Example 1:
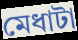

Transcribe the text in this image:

মেধাটা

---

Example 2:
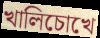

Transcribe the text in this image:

খালিচোখে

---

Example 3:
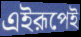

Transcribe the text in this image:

এইরূপেই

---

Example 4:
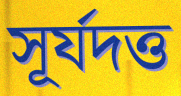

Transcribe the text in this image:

সূর্যদত্ত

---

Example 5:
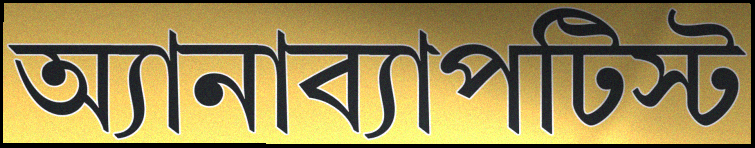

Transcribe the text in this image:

অ্যানাব্যাপটিস্ট